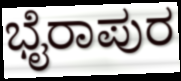
ಭೈರಾಪುರ